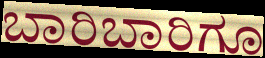
ಬಾರಿಬಾರಿಗೂ